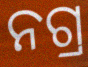
ନଗ୍ର